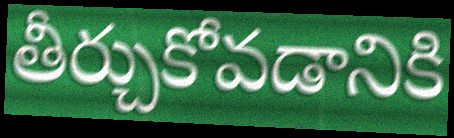
తీర్చుకోవడానికి